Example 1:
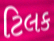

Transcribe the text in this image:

ટિલક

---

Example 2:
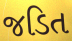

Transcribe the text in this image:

જડિત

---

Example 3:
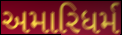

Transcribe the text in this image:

અમારિધર્મ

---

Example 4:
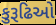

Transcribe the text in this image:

કુરૂઢિઓ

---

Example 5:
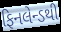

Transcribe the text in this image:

ફિનલેન્ડથી